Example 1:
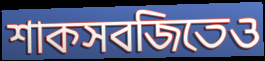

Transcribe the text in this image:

শাকসবজিতেও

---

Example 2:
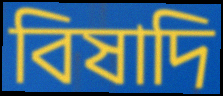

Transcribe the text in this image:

বিষাদি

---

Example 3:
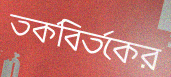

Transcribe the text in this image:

তর্কবির্তকের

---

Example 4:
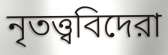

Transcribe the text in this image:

নৃতত্ত্ববিদেরা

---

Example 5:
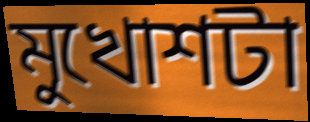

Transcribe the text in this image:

মুখোশটা